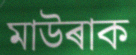
মাউৰাক